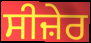
ਸੀਜ਼ੇਰ